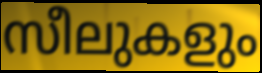
സീലുകളും